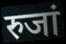
रुजां